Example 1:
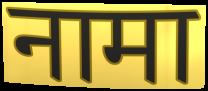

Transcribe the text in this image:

नामा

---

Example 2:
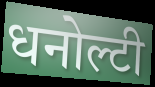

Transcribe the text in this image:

धनोल्‍टी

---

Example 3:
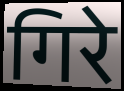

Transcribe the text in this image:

गिरे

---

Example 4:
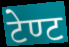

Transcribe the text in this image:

टेण्ट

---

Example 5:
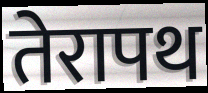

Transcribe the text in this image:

तेरापथ